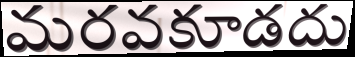
మరవకూడదు